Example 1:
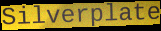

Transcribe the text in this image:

Silverplate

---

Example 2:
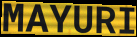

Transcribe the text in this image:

MAYURI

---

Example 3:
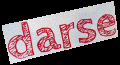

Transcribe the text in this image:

darse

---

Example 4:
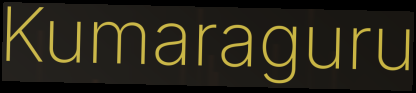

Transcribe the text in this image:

Kumaraguru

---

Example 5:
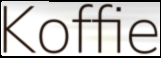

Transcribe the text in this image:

Koffie